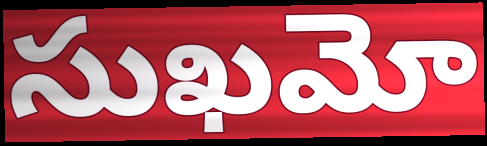
సుఖమో